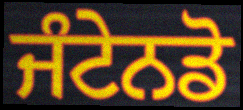
ਜੰਟੇਨਡੋ